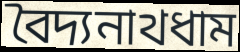
বৈদ্যনাথধাম